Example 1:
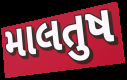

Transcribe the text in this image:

માલતુષ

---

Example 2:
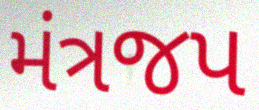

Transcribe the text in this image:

મંત્રજપ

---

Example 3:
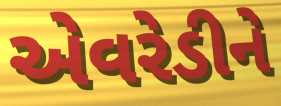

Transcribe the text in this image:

એવરેડીને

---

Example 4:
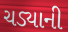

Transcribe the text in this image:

ચડ્યાની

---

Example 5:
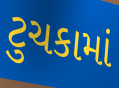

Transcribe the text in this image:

ટુચકામાં